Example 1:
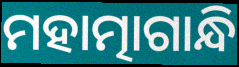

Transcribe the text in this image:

ମହାତ୍ମାଗାନ୍ଧି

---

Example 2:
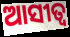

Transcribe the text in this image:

ଆସୀତ୍ବ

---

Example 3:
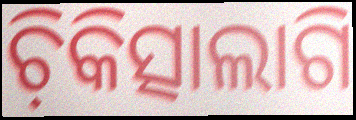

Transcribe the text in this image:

ଚ଼ିକିତ୍ସାଲାଗି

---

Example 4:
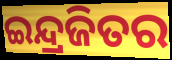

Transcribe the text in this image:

ଇନ୍ଦ୍ରଜିତର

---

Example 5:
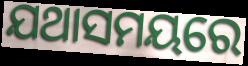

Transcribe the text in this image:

ଯଥାସମୟରେ